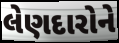
લેણદારોને